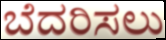
ಬೆದರಿಸಲು